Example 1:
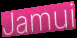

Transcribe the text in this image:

Jamui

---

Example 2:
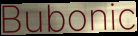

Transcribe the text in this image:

Bubonic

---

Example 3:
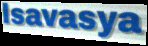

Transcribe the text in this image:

Isavasya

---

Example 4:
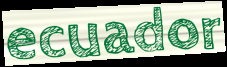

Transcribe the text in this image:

ecuador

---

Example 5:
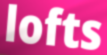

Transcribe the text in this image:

lofts